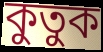
কুতুক